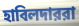
হাবিলদাররা